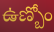
ఉణ్బోం